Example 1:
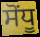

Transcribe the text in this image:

ਸੋਂਧੂ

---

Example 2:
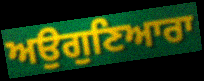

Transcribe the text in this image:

ਅਉਗੁਣਿਆਰਾ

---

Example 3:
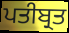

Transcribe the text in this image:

ਪਤੀਬ੍ਰਤ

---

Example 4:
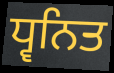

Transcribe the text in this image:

ਧ੍ਵਨਿਤ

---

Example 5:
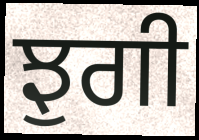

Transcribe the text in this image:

ਝੁਗੀ